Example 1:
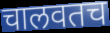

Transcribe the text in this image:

चालवतच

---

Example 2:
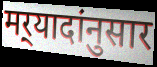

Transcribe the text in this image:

मर्यादांनुसार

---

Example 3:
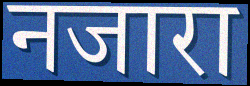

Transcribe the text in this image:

नजारा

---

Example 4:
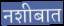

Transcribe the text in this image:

नशीबात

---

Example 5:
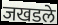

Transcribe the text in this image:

जखडले